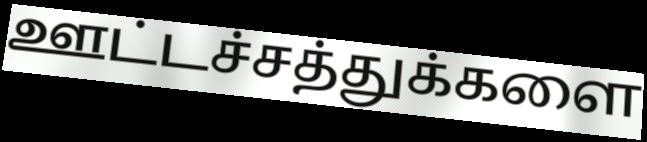
ஊட்டச்சத்துக்களை